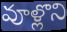
వూళ్లొని